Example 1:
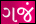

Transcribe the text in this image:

ગજં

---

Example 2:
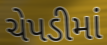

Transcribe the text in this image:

ચેપડીમાં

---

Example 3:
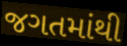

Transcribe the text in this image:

જગતમાંથી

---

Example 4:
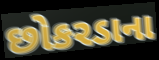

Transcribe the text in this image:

છોકરડાના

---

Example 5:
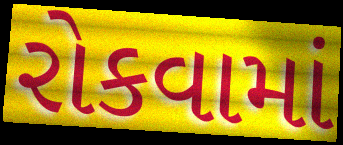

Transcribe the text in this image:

રોકવામાં